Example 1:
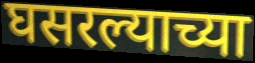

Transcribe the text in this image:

घसरल्याच्या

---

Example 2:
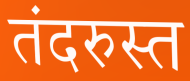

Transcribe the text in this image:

तंदरुस्त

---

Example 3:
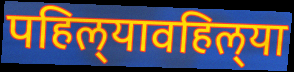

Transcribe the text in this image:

पहिल्यावहिल्या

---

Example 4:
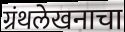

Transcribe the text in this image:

ग्रंथलेखनाचा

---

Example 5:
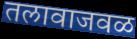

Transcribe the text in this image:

तलावाजवळ